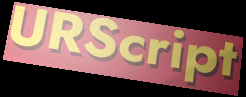
URScript